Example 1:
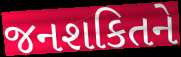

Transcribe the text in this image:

જનશકિતને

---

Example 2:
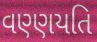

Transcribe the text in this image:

વણ્ણયતિ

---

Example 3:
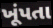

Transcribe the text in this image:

ખૂંપતા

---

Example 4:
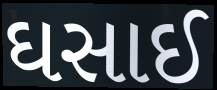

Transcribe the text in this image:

ઘસાઈ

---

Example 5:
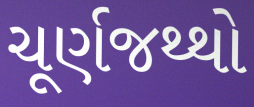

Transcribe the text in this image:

ચૂર્ણજથ્થો